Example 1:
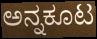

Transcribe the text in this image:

ಅನ್ನಕೂಟ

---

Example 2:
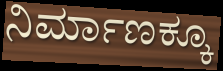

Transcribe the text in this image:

ನಿರ್ಮಾಣಕ್ಕೂ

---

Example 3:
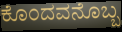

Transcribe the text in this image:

ಕೊಂದವನೊಬ್ಬ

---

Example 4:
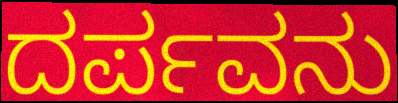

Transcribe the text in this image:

ದರ್ಪವನು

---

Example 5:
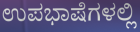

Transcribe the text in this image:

ಉಪಭಾಷೆಗಳಲ್ಲಿ